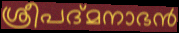
ശ്രീപദ്മനാഭൻ